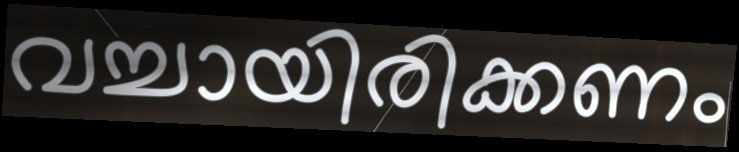
വച്ചായിരിക്കണം